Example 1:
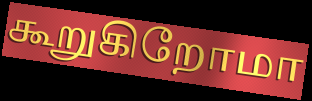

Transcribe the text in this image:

கூறுகிறோமா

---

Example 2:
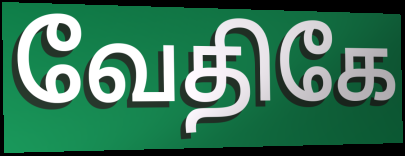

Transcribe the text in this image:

வேதிகே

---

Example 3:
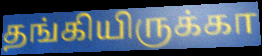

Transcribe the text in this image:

தங்கியிருக்கா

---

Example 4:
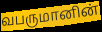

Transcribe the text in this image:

வபருமானின்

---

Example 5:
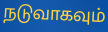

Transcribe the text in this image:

நடுவாகவும்